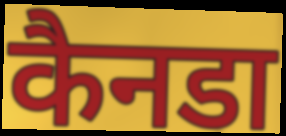
कैनडा